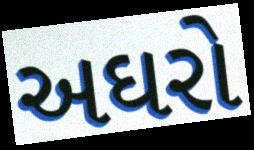
અઘરો